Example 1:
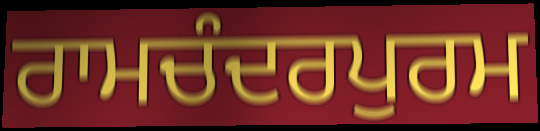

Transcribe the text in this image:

ਰਾਮਚੰਦਰਪੁਰਮ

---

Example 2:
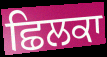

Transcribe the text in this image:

ਛਿਲਕਾ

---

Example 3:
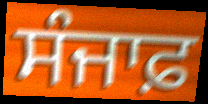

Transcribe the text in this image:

ਸੰਜਾਫ਼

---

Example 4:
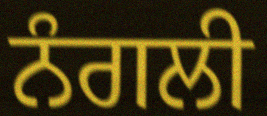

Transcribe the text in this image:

ਨੰਗਲੀ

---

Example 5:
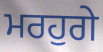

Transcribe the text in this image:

ਮਰਹੁਗੇ